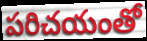
పరిచయంతో